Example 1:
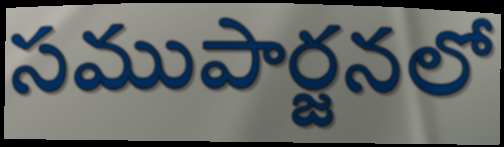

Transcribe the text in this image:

సముపార్జనలో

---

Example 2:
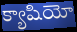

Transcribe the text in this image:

క్యాషియో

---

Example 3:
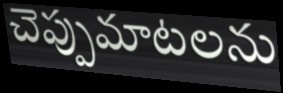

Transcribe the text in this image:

చెప్పుమాటలను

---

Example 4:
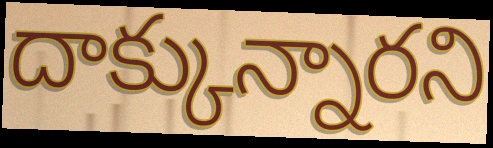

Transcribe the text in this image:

దాక్కున్నారని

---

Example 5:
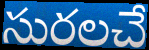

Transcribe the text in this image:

సురలచే